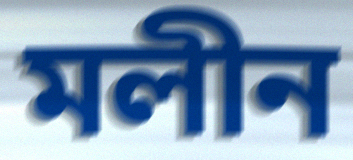
মলীন